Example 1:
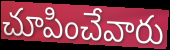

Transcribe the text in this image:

చూపించేవారు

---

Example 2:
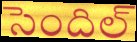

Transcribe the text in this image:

సెందిల్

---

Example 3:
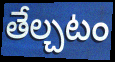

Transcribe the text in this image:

తేల్చటం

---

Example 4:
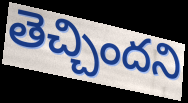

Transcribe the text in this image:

తెచ్చిందని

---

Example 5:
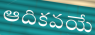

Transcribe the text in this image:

ఆదికవయే